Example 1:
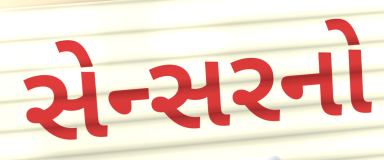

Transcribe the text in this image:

સેન્સરનો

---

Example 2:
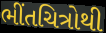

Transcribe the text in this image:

ભીંતચિત્રોથી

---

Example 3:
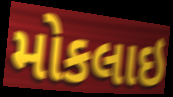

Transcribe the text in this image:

મોકલાઇ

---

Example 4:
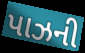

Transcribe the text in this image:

પાઝની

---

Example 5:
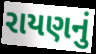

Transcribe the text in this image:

રાયણનું